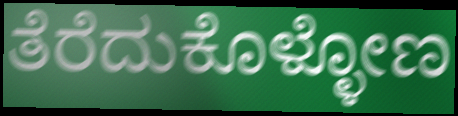
ತೆರೆದುಕೊಳ್ಳೋಣ